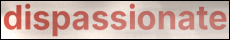
dispassionate